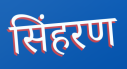
सिंहरण